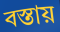
বস্তায়